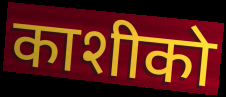
काशीको